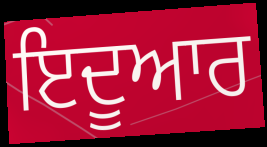
ਇਦੂਆਰ